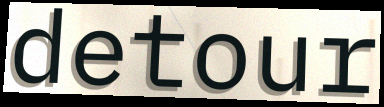
detour